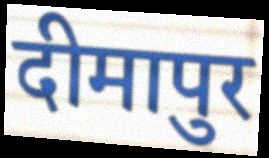
दीमापुर